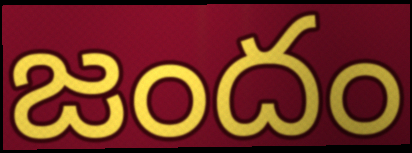
జందం